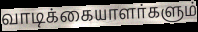
வாடிக்கையாளர்களும்